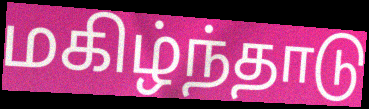
மகிழ்ந்தாடு